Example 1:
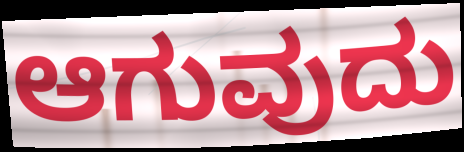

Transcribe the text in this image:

ಆಗುವುದು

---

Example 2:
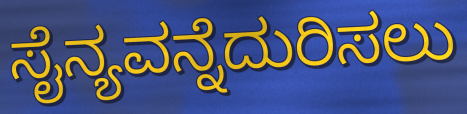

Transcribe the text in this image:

ಸೈನ್ಯವನ್ನೆದುರಿಸಲು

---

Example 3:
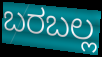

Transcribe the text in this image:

ಬರಬಲ್ಲ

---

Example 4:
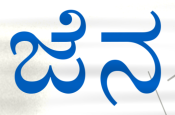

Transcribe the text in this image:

ಜೆನ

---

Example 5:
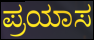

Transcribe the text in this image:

ಪ್ರಯಾಸ